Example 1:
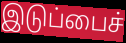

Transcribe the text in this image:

இடுப்பைச்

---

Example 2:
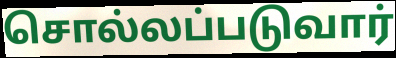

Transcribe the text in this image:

சொல்லப்படுவார்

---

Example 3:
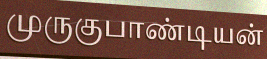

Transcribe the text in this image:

முருகுபாண்டியன்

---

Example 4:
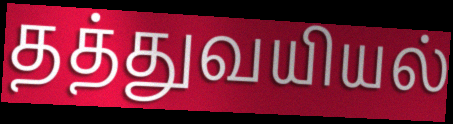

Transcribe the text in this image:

தத்துவயியல்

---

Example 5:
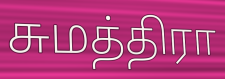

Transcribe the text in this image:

சுமத்திரா